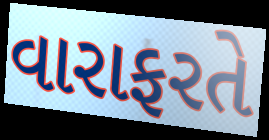
વારાફરતે